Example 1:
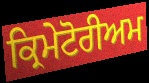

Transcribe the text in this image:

ਕ੍ਰਿਮੇਟੋਰੀਅਮ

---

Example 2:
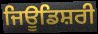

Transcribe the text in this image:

ਜਿਊਡਿਸ਼ਰੀ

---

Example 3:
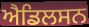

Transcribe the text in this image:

ਐਡਿਲਸਨ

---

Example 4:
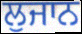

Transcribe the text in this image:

ਲੁਜਾਨ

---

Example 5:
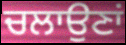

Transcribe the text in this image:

ਚਲਾਉਣਾਂ